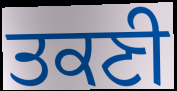
ਤਕਣੀ